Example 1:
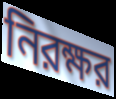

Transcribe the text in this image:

নিরক্ষর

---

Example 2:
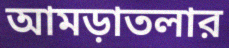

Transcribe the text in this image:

আমড়াতলার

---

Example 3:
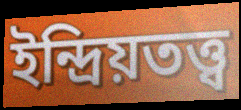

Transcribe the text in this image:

ইন্দ্রিয়তত্ত্ব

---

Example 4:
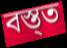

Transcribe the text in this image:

বস্ত্ত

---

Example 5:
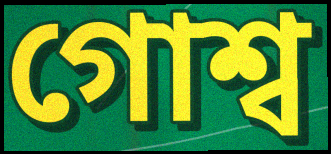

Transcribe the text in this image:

গোশ্ব